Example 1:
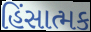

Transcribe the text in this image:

હિંસાત્મક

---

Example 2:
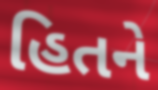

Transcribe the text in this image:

હિતને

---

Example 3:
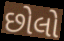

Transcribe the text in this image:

છોલો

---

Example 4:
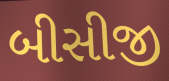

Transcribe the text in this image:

બીસીજી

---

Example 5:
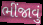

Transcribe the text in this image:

ભીંજાવું